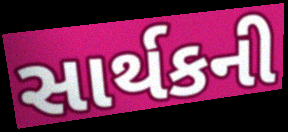
સાર્થકની